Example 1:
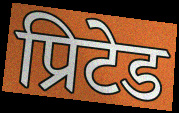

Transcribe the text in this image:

प्रिटेड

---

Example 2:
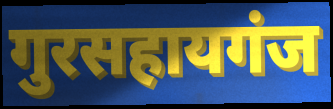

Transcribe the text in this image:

गुरसहायगंज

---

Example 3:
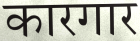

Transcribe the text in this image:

कारगार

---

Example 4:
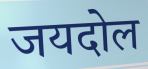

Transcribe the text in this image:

जयदोल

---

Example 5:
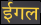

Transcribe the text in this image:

ईगल